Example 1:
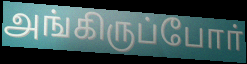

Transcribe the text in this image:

அங்கிருப்போர்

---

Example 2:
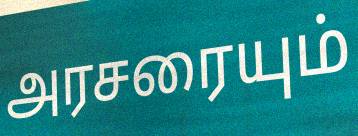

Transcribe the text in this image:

அரசரையும்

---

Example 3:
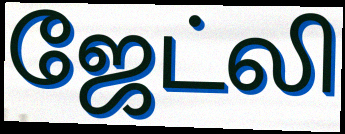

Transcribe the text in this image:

ஜேட்லி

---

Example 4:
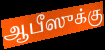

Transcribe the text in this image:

ஆபீஸுக்கு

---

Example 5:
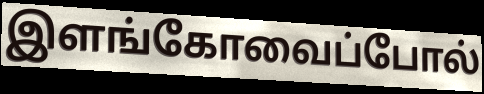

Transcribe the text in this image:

இளங்கோவைப்போல்